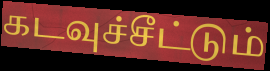
கடவுச்சீட்டும்